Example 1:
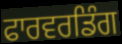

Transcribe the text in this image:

ਫਾਰਵਰਡਿੰਗ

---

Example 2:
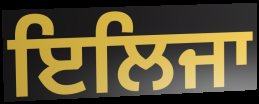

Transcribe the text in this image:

ਇਲਿਜਾ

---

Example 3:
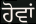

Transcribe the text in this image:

ਹੋਵਾਂ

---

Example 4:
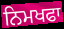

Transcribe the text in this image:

ਨਿਮਖਫਾ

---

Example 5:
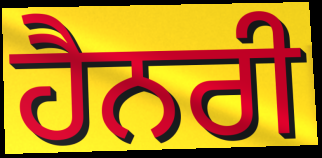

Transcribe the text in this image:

ਹੈਨਰੀ